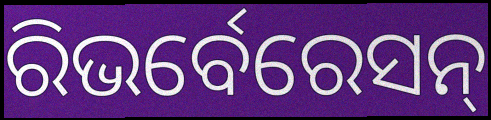
ରିଭର୍ବେରେସନ୍